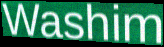
Washim